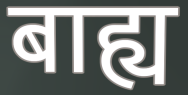
बाह्य